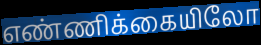
எண்ணிக்கையிலோ